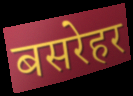
बसरेहर